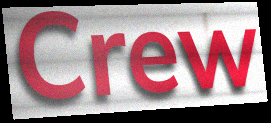
Crew